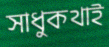
সাধুকথাই